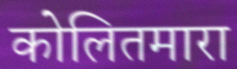
कोलितमारा